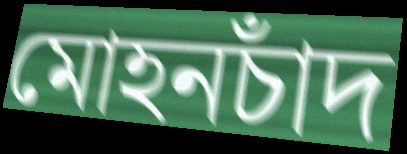
মোহনচাঁদ